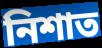
নিশাত